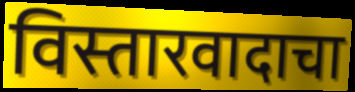
विस्तारवादाचा